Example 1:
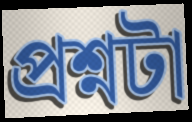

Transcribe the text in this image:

প্রশ্নটা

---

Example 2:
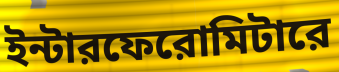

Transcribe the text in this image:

ইন্টারফেরোমিটারে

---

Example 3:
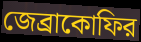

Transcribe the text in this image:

জেব্রাকোফির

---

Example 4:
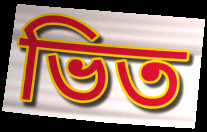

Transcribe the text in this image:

ভিত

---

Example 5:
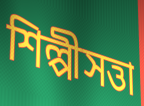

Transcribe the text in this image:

শিল্পীসত্তা